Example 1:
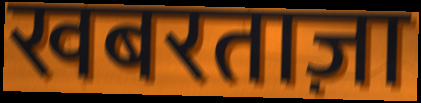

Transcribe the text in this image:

खबरताज़ा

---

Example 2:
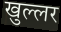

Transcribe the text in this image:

खुल्लर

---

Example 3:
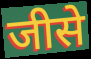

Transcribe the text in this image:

जीसे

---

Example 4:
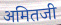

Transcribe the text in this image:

अमितजी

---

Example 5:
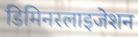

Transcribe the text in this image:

डिमिनरलाइजेशन